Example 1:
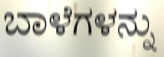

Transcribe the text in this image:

ಬಾಳೆಗಳನ್ನು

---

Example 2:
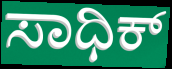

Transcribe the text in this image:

ಸಾಧಿಕ್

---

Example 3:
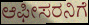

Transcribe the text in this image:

ಆಫೀಸರನಿಗೆ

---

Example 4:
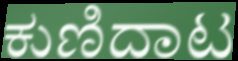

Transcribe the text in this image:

ಕುಣಿದಾಟ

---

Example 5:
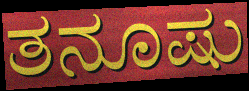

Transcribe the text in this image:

ತನೂಷು